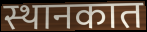
स्थानकात